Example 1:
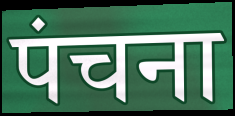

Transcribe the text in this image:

पंचना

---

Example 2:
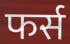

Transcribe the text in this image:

फर्स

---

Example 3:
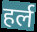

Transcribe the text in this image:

हर्ल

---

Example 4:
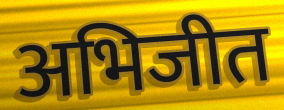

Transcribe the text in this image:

अभिजीत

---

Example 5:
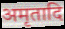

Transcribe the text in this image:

अमृतादि